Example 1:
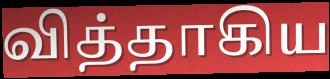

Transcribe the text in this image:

வித்தாகிய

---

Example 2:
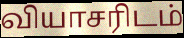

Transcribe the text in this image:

வியாசரிடம்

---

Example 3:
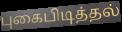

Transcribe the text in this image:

புகைபிடித்தல்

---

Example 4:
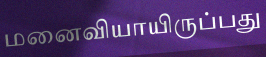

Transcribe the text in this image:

மனைவியாயிருப்பது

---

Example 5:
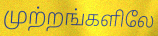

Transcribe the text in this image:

முற்றங்களிலே